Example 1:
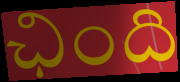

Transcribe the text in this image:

ఛింది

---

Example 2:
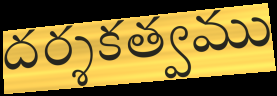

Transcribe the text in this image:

దర్శకత్వము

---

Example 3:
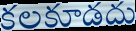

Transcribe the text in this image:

కలకూడదు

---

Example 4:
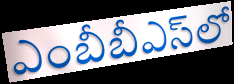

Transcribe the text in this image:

ఎంబీబీఎస్‌లో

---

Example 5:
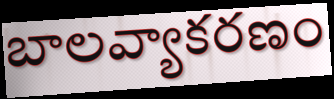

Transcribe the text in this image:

బాలవ్యాకరణం